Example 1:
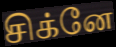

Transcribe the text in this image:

சிக்னே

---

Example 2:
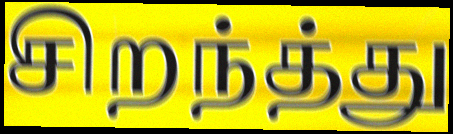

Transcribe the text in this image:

சிறந்த்து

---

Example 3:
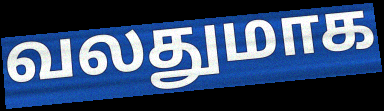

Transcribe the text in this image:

வலதுமாக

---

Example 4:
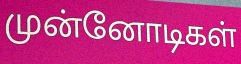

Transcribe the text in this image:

முன்னோடிகள்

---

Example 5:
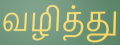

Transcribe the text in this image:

வழித்து